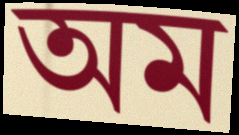
অম